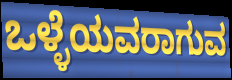
ಒಳ್ಳೆಯವರಾಗುವ